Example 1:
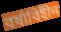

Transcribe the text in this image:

বর্ষাবিহীন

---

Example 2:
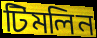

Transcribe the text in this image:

টিমলিন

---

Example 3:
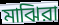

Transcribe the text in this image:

মাঝিরা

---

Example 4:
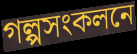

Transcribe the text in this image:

গল্পসংকলনে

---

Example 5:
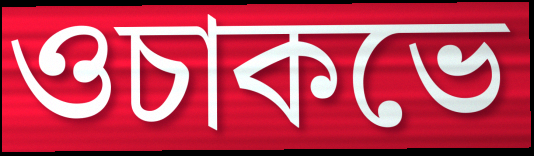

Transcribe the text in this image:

ওচাকভে